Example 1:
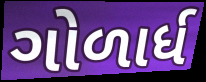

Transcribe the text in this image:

ગોળાર્ધ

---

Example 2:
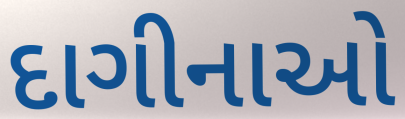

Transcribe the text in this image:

દાગીનાઓ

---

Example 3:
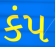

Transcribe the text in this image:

કંપ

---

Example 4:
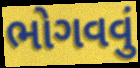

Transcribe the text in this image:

ભોગવવું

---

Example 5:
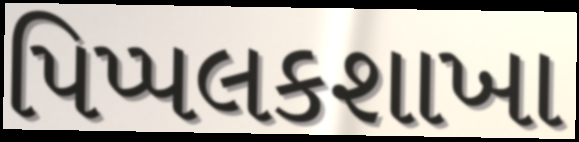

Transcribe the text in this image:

પિપ્પલકશાખા